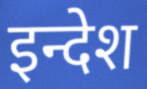
इन्देश